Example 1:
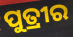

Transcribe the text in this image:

ପୁତ୍ରୀର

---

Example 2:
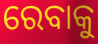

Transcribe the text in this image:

ରେବାକୁ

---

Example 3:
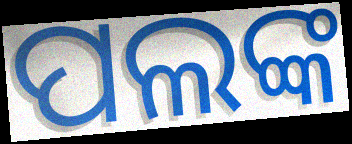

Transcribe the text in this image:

ପଲଙ୍କ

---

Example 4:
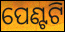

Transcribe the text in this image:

ପେଣ୍ଟଟି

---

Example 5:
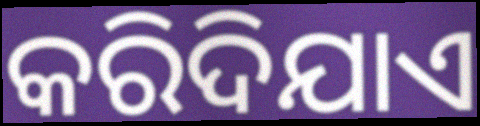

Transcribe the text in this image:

କରିଦିଯାଏ